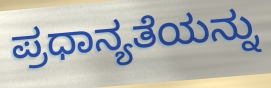
ಪ್ರಧಾನ್ಯತೆಯನ್ನು